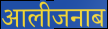
आलीजनाब